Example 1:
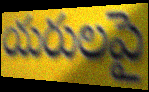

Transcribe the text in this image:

యరులపై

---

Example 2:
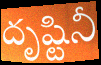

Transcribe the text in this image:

దృష్టినీ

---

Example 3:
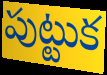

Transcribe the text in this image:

పుట్టుక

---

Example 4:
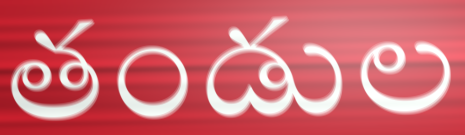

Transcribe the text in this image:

తండుల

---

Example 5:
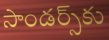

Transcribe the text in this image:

సాండర్స్‌కు